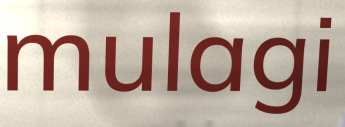
mulagi